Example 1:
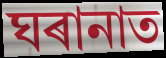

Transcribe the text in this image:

ঘৰানাত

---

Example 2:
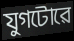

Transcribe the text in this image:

যুগটোৱে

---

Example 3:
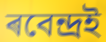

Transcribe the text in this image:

ৰবেন্দ্ৰই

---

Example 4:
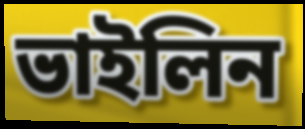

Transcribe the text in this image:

ভাইলিন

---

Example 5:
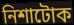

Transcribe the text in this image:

নিশাটোক